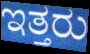
ಇತ್ತರು